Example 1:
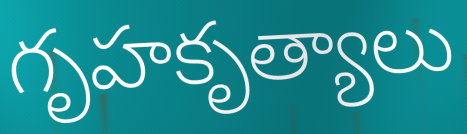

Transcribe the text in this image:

గృహకృత్యాలు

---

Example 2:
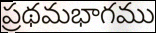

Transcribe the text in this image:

ప్రథమభాగము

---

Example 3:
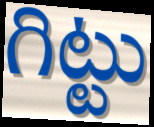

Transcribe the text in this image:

గిట్టు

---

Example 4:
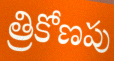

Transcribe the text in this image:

త్రికోణపు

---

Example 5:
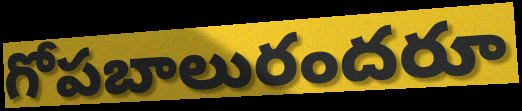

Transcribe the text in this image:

గోపబాలురందరూ